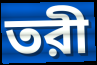
তরী